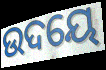
ଉଦୟେ